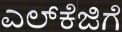
ಎಲ್‌ಕೆಜಿಗೆ